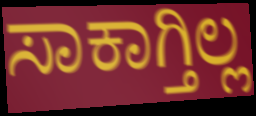
ಸಾಕಾಗ್ತಿಲ್ಲ